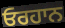
ਓਰਹਾਨ